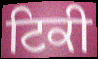
ਟਿਕੀ